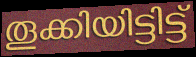
തൂക്കിയിട്ടിട്ട്